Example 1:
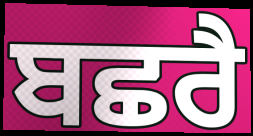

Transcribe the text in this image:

ਬਛਰੈ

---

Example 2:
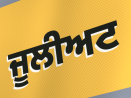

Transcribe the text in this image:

ਜੂਲੀਅਟ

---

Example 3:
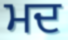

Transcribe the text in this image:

ਮਦ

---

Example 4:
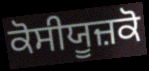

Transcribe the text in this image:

ਕੋਸੀਯੂਜ਼ਕੋ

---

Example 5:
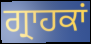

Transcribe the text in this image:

ਗ੍ਰਾਹਕਾਂ